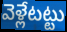
వెళ్లేటట్టు